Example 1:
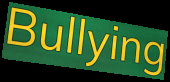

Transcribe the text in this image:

Bullying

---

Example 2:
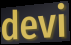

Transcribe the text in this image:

devi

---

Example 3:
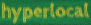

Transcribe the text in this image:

hyperlocal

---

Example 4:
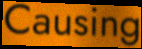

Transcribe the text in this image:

Causing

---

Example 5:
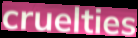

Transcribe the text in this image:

cruelties